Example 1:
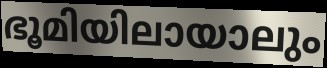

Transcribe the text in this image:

ഭൂമിയിലായാലും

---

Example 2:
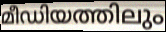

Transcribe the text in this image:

മീഡിയത്തിലും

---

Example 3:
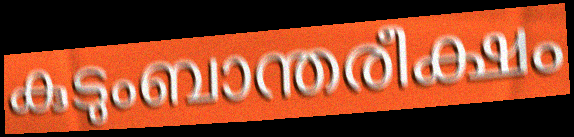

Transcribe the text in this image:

കുടുംബാന്തരീക്ഷം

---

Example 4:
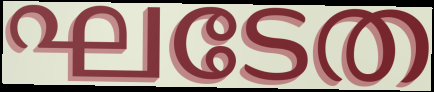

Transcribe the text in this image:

ഘടേത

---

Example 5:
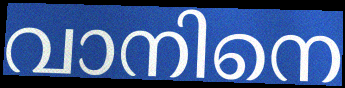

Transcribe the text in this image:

വാനിനെ